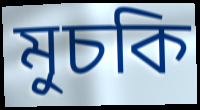
মুচকি